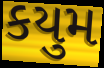
કયુમ